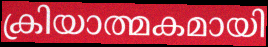
ക്രിയാത്മകമായി